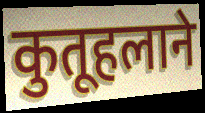
कुतूहलाने